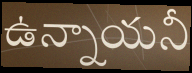
ఉన్నాయనీ